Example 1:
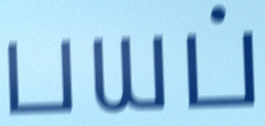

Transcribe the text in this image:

பயப்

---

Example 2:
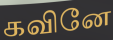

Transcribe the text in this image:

கவினே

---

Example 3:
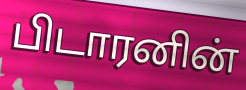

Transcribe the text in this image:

பிடாரனின்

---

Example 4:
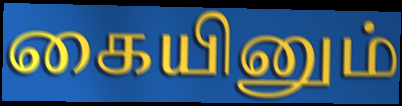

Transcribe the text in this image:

கையினும்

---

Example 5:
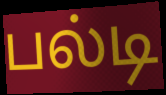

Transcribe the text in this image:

பல்டி